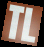
TL